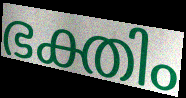
ഭക്തിം